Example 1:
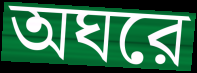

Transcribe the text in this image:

অঘরে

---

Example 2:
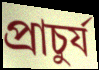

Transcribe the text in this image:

প্রাচুর্য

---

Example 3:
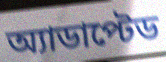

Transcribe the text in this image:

অ্যাডাপ্টেড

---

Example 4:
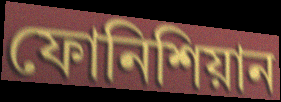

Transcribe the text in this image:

ফোনিশিয়ান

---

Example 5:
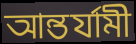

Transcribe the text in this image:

আন্তর্যামী